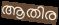
ആതിര